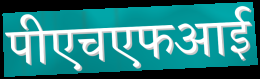
पीएचएफआई